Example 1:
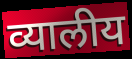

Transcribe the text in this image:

व्यालीय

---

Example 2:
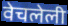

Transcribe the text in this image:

वेचलेली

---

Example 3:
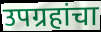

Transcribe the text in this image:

उपग्रहांचा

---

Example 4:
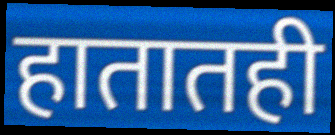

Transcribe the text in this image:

हातातही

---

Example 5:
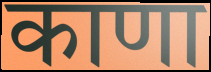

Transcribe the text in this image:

काणा